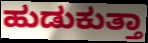
ಹುಡುಕುತ್ತಾ